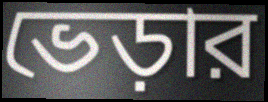
ভেড়ার